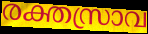
രക്തസ്രാവ